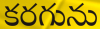
కరగును